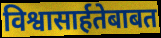
विश्वासार्हतेबाबत